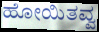
ಹೋಯಿತವ್ವ